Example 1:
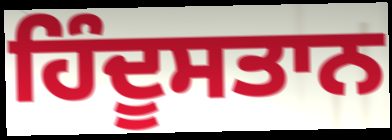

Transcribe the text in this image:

ਹਿੰਦੂਸਤਾਨ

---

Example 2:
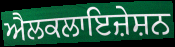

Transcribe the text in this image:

ਐਲਕਲਾਇਜ਼ੇਸ਼ਨ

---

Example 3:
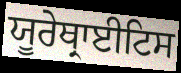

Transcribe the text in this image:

ਯੂਰੇਥ੍ਰਾਈਟਿਸ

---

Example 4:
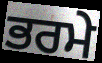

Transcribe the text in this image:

ਭਰਮੇ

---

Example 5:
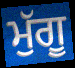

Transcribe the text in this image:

ਮੁੱਗੂ